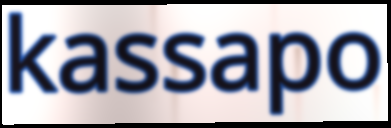
kassapo